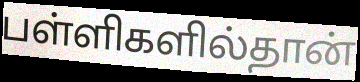
பள்ளிகளில்தான்